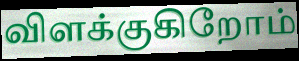
விளக்குகிறோம்